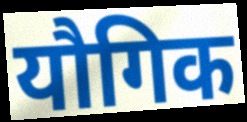
यौगिक